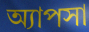
অ্যাপসা